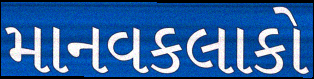
માનવકલાકો